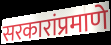
सरकारांप्रमाणे